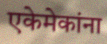
एकेमेकांना